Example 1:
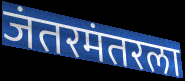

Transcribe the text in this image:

जंतरमंतरला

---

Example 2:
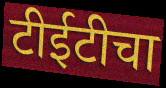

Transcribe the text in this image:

टीईटीचा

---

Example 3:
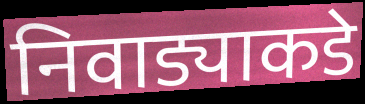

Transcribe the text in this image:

निवाड्याकडे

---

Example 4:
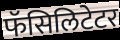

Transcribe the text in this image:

फॅसिलिटेटर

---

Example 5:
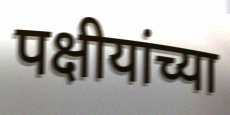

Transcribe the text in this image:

पक्षीयांच्या